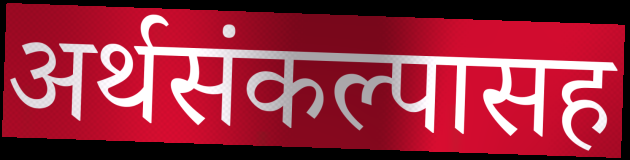
अर्थसंकल्पासह